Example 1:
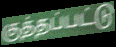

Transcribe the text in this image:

குத்தப்பட்டு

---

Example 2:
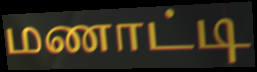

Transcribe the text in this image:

மணாட்டி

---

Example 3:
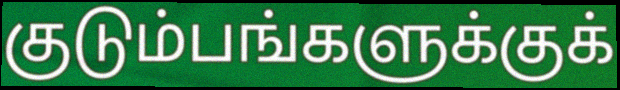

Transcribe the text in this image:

குடும்பங்களுக்குக்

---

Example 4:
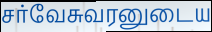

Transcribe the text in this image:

சர்வேசுவரனுடைய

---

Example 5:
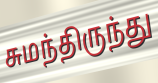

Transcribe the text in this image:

சுமந்திருந்து